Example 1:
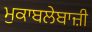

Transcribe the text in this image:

ਮੁਕਾਬਲੇਬਾਜ਼ੀ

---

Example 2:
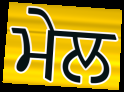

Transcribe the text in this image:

ਮੇਲ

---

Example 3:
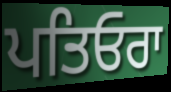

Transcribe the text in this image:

ਪਤਿਓਰਾ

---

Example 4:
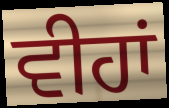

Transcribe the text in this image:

ਵੀਹਾਂ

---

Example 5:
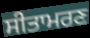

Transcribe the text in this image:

ਸੀਤਾਮਰਣ